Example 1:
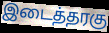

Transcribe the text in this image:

இடைத்தரகு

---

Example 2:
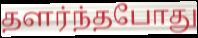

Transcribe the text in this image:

தளர்ந்தபோது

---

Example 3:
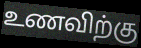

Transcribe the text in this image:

உணவிற்கு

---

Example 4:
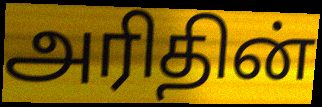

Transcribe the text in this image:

அரிதின்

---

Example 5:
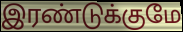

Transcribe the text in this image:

இரண்டுக்குமே